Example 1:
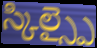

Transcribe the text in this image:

స్కిల్స్పై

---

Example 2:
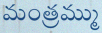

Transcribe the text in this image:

మంత్రమ్ము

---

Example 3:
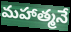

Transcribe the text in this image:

మహాత్మనే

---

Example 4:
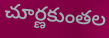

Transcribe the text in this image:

చూర్ణకుంతల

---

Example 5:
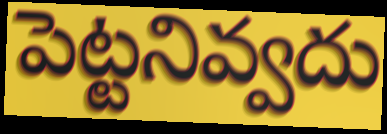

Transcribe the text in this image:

పెట్టనివ్వదు